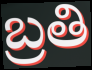
బ్రతి